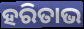
ହରିତାଭ